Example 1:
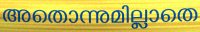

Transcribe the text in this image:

അതൊന്നുമില്ലാതെ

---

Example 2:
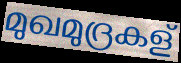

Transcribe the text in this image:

മുഖമുദ്രകള്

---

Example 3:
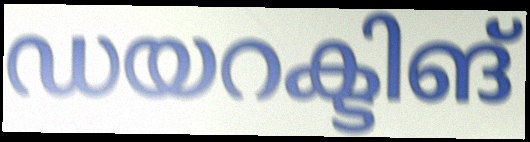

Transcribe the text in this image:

ഡയറക്ടിങ്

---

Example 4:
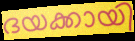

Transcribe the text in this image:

ദയക്കായി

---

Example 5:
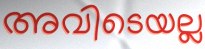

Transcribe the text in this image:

അവിടെയല്ല